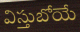
విస్తుబోయే